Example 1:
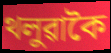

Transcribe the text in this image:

থলুৱাকৈ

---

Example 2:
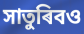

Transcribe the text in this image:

সাতুৰিবও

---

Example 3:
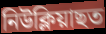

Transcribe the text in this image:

নিউক্লিয়াছত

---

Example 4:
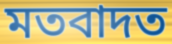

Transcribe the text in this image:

মতবাদত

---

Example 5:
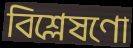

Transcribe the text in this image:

বিশ্লেষণো